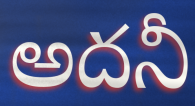
అదనీ